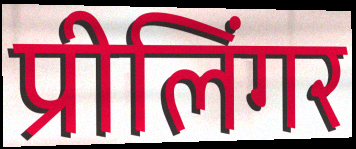
प्रीलिंगर